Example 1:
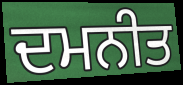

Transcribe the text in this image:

ਦਮਨੀਤ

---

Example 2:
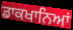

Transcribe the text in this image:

ਡਾਕਖਾਨਿਆਂ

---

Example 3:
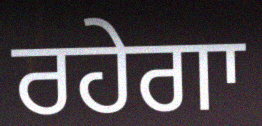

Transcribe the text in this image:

ਰਹੇਗਾ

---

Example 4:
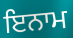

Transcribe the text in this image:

ਇਨਾਮ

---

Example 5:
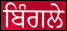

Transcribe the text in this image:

ਬਿੰਗਲੇ